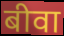
बीवा